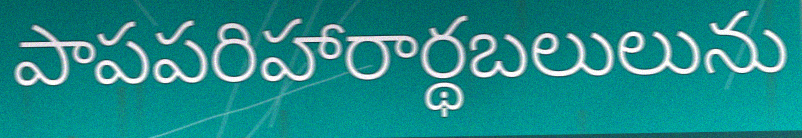
పాపపరిహారార్థబలులును